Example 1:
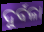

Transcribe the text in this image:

ଦୁର୍ବଳା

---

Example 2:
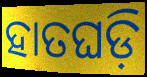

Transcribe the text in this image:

ହାତଘଡ଼ି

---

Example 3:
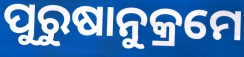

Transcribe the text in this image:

ପୁରୁଷାନୁକ୍ରମେ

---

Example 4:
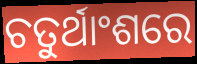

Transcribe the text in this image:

ଚତୁର୍ଥାଂଶରେ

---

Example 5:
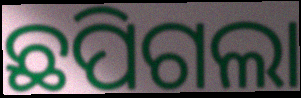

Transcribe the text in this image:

ଛପିଗଲା